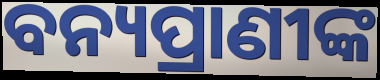
ବନ୍ୟପ୍ରାଣୀଙ୍କ